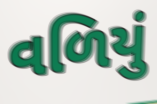
વળિયું